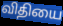
விதியை